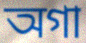
অগা